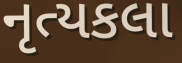
નૃત્યકલા